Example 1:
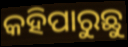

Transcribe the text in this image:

କହିପାରୁଛୁ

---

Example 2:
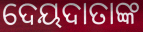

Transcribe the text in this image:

ଦେୟଦାତାଙ୍କ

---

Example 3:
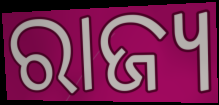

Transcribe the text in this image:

ରାଜ୍ଯ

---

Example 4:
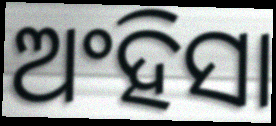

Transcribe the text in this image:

ଅଂହିସା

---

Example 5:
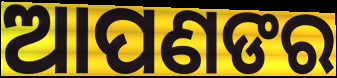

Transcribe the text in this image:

ଆପଣଙର